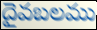
దైవబలము